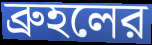
ব্রুহলের